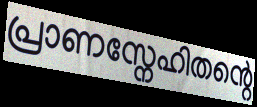
പ്രാണസ്നേഹിതന്റെ